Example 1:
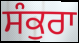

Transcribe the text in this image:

ਸੰਕੁਰਾ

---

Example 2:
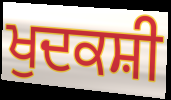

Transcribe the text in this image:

ਖੁਦਕਸ਼ੀ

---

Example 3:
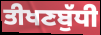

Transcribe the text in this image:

ਤੀਖਣਬੁੱਧੀ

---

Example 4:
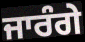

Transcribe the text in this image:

ਜਾਰੰਗੇ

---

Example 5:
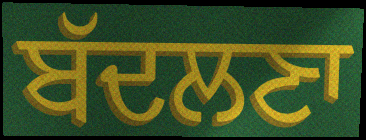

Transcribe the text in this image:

ਬੱਦਲਣਾ